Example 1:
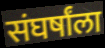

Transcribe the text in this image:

संघर्षांला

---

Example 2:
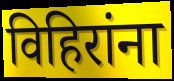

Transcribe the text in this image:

विहिरांना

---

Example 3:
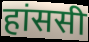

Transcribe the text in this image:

हांससी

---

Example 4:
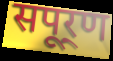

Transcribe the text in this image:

सपूर्ण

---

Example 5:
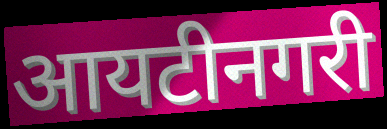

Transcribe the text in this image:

आयटीनगरी